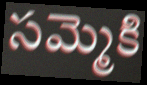
సమ్మెకి